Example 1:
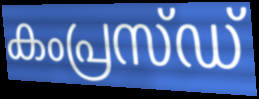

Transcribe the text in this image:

കംപ്രസ്ഡ്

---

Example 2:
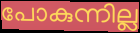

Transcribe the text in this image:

പോകുന്നില്ല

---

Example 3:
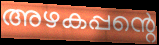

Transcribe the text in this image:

അഴകപ്പന്റെ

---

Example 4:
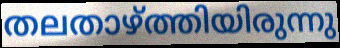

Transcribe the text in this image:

തലതാഴ്ത്തിയിരുന്നു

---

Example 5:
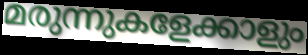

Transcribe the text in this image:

മരുന്നുകളേക്കാളും